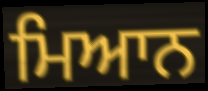
ਮਿਆਨ